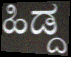
ಹಿಡ್ದ